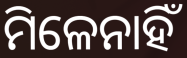
ମିଳେନାହିଁ